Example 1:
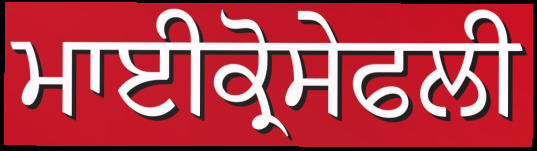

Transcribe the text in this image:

ਮਾਈਕ੍ਰੋਸੇਫਲੀ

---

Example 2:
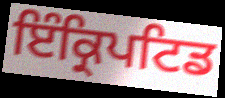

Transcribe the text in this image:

ਇੰਕ੍ਰਿਪਟਿਡ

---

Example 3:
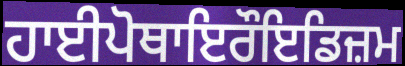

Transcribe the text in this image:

ਹਾਈਪੋਥਾਇਰੌਇਡਿਜ਼ਮ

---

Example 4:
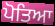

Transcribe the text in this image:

ਪੋਤਿਆ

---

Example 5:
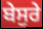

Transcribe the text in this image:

ਬੇਸੁਰੇ